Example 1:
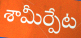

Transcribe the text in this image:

శామీర్పేట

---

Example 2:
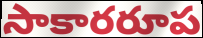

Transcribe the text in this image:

సాకారరూప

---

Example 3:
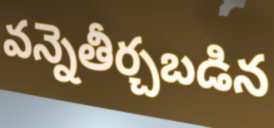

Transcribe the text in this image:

వన్నెతీర్చబడిన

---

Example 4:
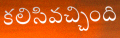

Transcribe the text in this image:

కలిసివచ్చింది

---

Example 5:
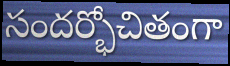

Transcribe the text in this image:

సందర్భోచితంగా